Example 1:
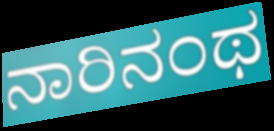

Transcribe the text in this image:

ನಾರಿನಂಥ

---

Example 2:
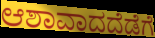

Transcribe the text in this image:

ಆಶಾವಾದದೆಡೆಗೆ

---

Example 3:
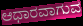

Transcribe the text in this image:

ಆಧಾರವಾಗುವ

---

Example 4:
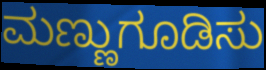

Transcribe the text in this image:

ಮಣ್ಣುಗೂಡಿಸು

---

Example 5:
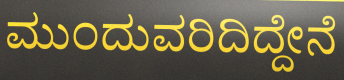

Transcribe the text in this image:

ಮುಂದುವರಿದಿದ್ದೇನೆ